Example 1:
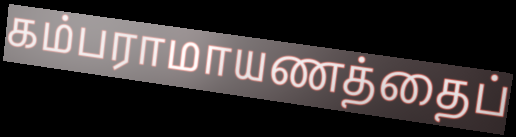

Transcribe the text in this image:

கம்பராமாயணத்தைப்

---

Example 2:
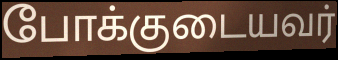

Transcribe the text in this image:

போக்குடையவர்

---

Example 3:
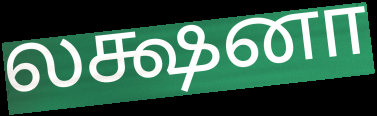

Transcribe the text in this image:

லக்ஷனா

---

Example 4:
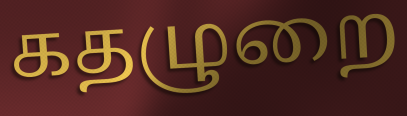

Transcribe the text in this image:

கதழுறை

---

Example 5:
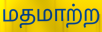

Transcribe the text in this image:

மதமாற்ற